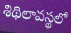
శిథిలావస్థలో